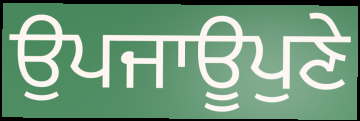
ਉਪਜਾਊਪੁਣੇ